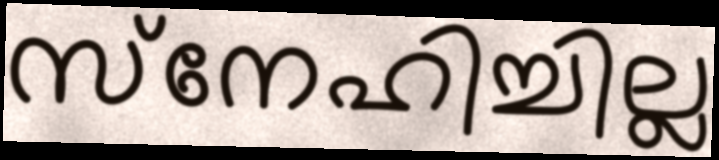
സ്‌നേഹിച്ചില്ല